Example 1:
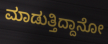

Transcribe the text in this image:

ಮಾಡುತ್ತಿದ್ದಾನೋ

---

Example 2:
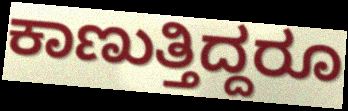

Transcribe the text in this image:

ಕಾಣುತ್ತಿದ್ದರೂ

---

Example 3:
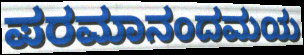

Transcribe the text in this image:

ಪರಮಾನಂದಮಯ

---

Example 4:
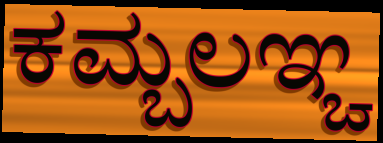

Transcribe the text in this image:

ಕಮ್ಬಲಞ್ಚ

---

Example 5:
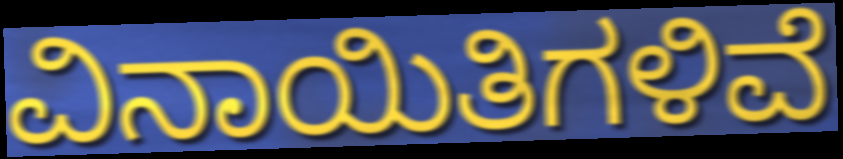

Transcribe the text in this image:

ವಿನಾಯಿತಿಗಳಿವೆ